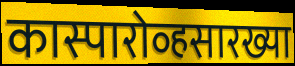
कास्पारोव्हसारख्या